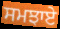
ਸਮਝਾਏ